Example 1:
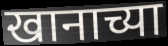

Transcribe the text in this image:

खानाच्या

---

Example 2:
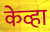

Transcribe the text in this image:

केव्हा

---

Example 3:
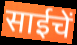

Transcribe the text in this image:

साईचें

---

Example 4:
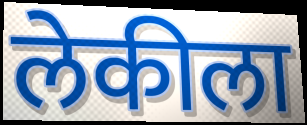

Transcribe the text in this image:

लेकीला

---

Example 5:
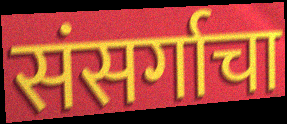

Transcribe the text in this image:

संसर्गाचा